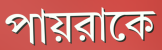
পায়রাকে